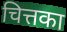
चित्तका